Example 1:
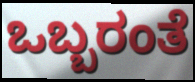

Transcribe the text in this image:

ಒಬ್ಬರಂತೆ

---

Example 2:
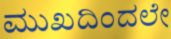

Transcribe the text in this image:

ಮುಖದಿಂದಲೇ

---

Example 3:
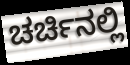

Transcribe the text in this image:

ಚರ್ಚಿನಲ್ಲಿ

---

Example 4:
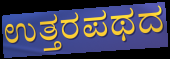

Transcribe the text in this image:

ಉತ್ತರಪಥದ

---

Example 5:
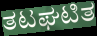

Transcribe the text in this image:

ತಟಘಟಿತ